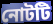
নোটটি